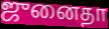
ஜுனைதா